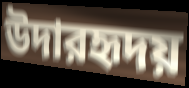
উদারহৃদয়